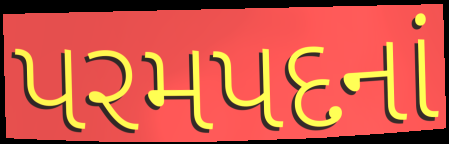
પરમપદનાં